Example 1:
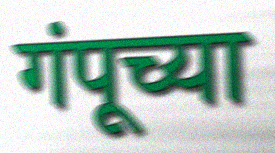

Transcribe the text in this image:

गंपूच्या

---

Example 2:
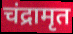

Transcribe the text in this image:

चंद्रामृत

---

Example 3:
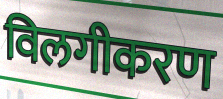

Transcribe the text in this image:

विलगीकरण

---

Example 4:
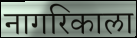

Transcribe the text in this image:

नागरिकाला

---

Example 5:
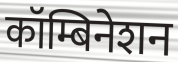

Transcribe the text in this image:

कॉम्बिनेशन